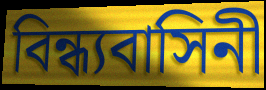
বিন্ধ্যবাসিনী